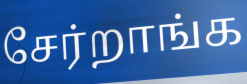
சேர்றாங்க